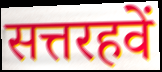
सत्तरहवें